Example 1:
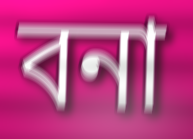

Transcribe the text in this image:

বনা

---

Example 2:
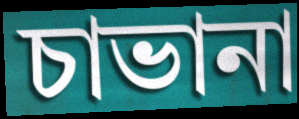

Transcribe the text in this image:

চাভানা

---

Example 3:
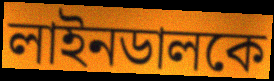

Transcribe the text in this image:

লাইনডালকে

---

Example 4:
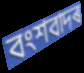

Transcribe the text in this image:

বংশবাদৰ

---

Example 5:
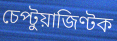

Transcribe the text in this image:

চেপ্টুয়াজিণ্টক